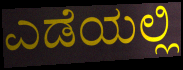
ಎಡೆಯಲ್ಲಿ